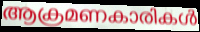
ആക്രമണകാരികൾ